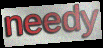
needy